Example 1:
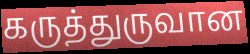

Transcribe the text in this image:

கருத்துருவான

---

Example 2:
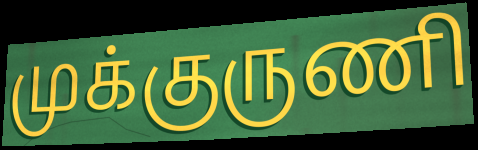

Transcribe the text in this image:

முக்குருணி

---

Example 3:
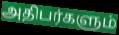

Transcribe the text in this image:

அதிபர்களும்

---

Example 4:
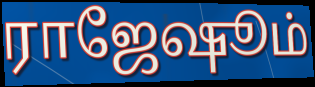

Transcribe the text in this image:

ராஜேஷூம்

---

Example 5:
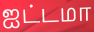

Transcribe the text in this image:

ஐட்டமா